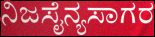
ನಿಜಸೈನ್ಯಸಾಗರ